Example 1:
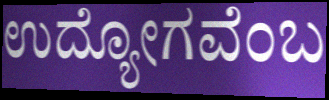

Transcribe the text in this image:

ಉದ್ಯೋಗವೆಂಬ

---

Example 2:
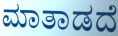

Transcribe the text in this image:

ಮಾತಾಡದೆ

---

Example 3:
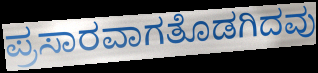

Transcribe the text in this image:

ಪ್ರಸಾರವಾಗತೊಡಗಿದವು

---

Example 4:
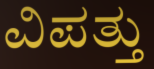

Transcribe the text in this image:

ವಿಪತ್ತು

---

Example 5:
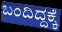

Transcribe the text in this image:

ಬಂದಿದ್ದಕ್ಕೆ